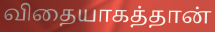
விதையாகத்தான்